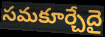
సమకూర్చేదై